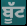
ਬੂੱਟ